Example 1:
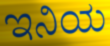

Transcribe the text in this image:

ಇನಿಯ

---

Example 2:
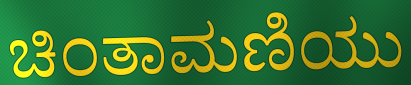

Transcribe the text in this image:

ಚಿಂತಾಮಣಿಯು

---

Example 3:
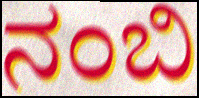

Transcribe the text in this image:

ನಂಬಿ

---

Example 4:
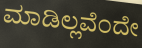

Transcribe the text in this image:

ಮಾಡಿಲ್ಲವೆಂದೇ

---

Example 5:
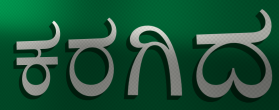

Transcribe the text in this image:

ಕರಗಿದ